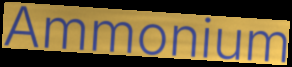
Ammonium